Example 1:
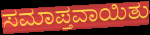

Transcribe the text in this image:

ಸಮಾಪ್ತವಾಯಿತು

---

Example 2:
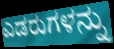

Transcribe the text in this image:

ಎಡರುಗಳನ್ನು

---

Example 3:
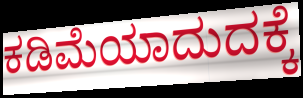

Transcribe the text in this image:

ಕಡಿಮೆಯಾದುದಕ್ಕೆ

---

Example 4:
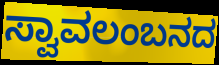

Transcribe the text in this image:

ಸ್ವಾವಲಂಬನದ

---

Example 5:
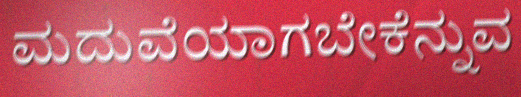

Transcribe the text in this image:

ಮದುವೆಯಾಗಬೇಕೆನ್ನುವ